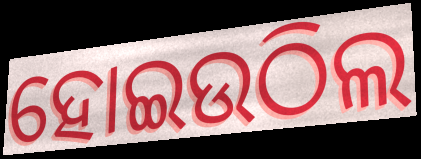
ହୋଇଉଠିଲ